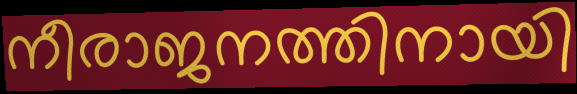
നീരാജനത്തിനായി